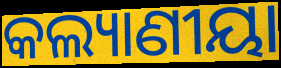
କଲ୍ୟାଣୀୟା